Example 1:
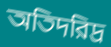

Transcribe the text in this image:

অতিদরিদ্র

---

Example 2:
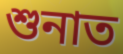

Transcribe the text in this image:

শুনাত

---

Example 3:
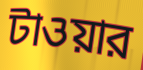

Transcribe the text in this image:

টাওয়ার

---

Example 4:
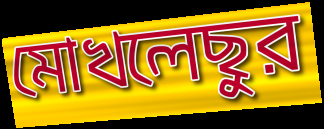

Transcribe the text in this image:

মোখলেছুর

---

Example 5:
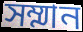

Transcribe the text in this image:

সম্মান